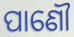
ପାଣୌ